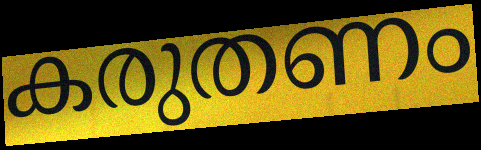
കരുതണം